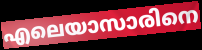
എലെയാസാരിനെ